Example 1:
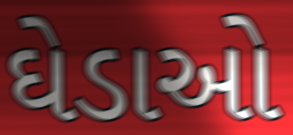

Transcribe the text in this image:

ઘેડાઓ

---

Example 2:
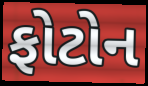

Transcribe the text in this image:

ફોટોન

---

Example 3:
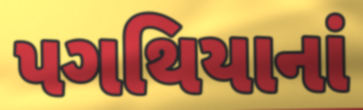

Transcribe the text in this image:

પગથિયાનાં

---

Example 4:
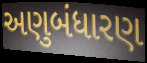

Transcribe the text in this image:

અણુબંધારણ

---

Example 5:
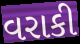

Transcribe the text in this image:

વરાકી